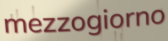
mezzogiorno